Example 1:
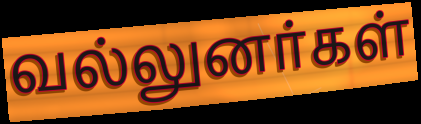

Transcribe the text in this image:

வல்லுனர்கள்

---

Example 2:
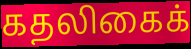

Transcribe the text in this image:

கதலிகைக்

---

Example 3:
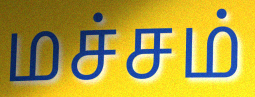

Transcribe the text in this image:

மச்சம்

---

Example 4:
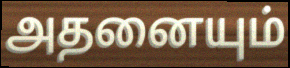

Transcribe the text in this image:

அதனையும்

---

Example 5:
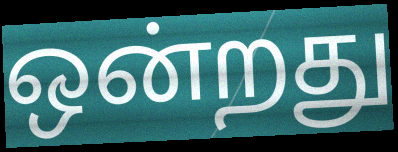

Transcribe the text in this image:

ஒன்றது